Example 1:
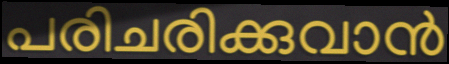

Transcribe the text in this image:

പരിചരിക്കുവാൻ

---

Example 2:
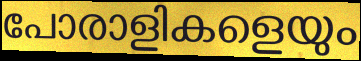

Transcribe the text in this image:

പോരാളികളെയും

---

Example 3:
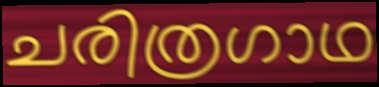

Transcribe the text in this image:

ചരിത്രഗാഥ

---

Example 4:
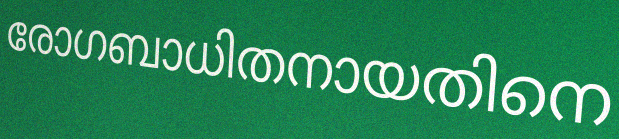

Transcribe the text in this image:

രോഗബാധിതനായതിനെ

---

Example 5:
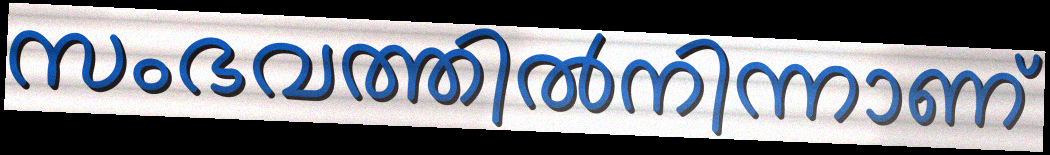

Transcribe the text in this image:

സംഭവത്തിൽനിന്നാണ്